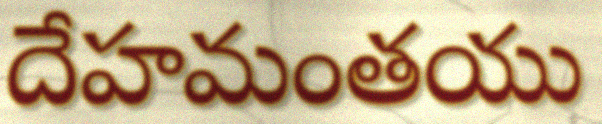
దేహమంతయు